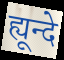
ह्यून्दे